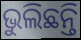
ଭୁଲିଛନ୍ତି